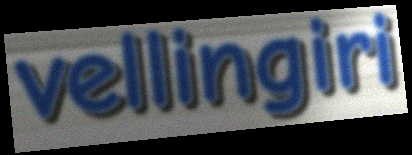
vellingiri